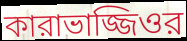
কারাভাজ্জিওর